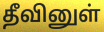
தீவினுள்